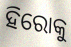
ହିରୋକୁ